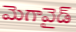
మెగావైడ్